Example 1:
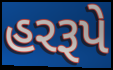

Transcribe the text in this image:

હરરૂપે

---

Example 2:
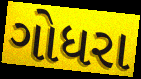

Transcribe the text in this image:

ગોધરા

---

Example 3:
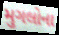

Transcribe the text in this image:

મુગલોના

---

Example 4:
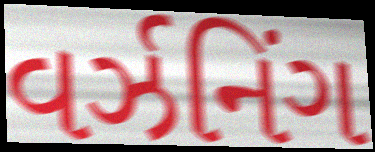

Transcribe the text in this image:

વર્ઝનિંગ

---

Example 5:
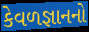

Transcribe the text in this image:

કેવળજ્ઞાનનો